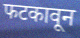
फटकावून